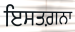
ਇਸਤਗ਼ਨਾ